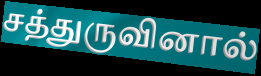
சத்துருவினால்